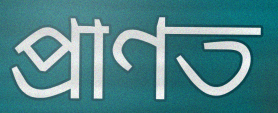
প্ৰাণত